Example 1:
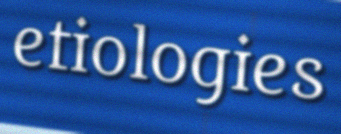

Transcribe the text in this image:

etiologies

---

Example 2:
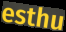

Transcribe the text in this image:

esthu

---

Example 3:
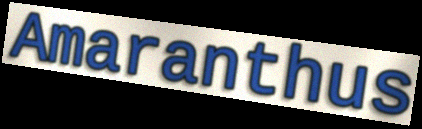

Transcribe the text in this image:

Amaranthus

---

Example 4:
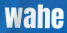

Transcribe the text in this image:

wahe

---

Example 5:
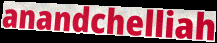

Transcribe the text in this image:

anandchelliah